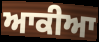
ਆਕੀਆ